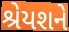
શ્રેયશને